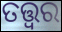
ତତ୍ତ୍ଵର